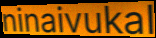
ninaivukal